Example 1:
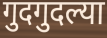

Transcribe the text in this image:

गुदगुदल्या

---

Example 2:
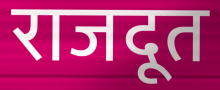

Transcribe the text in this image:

राजदूत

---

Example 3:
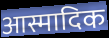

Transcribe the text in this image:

आस्मादिक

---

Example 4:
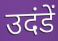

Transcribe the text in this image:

उदंडें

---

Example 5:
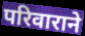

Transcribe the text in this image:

परिवाराने